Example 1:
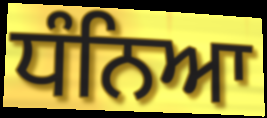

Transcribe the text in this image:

ਧੰਨਿਆ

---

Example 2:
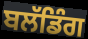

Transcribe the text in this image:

ਬਲੱਡਿੰਗ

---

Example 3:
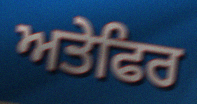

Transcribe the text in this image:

ਅਤੇਫਿਰ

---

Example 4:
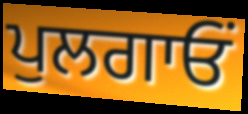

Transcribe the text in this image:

ਪੁਲਗਾਓਂ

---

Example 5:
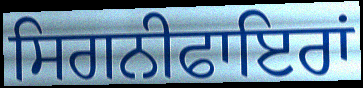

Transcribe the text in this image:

ਸਿਗਨੀਫਾਇਰਾਂ